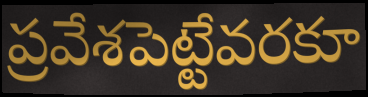
ప్రవేశపెట్టేవరకూ